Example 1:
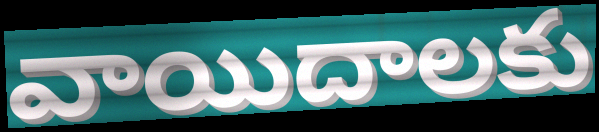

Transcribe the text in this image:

వాయిదాలకు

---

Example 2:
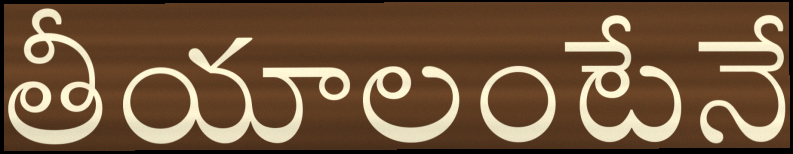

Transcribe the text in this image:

తీయాలంటేనే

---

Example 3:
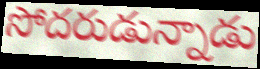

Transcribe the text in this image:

సోదరుడున్నాడు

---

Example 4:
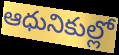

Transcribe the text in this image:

ఆధునికుల్లో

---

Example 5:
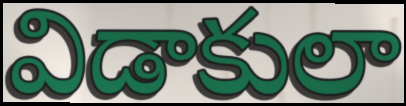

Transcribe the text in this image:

విడాకులా